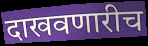
दाखवणारीच